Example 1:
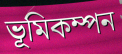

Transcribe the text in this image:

ভূমিকম্পন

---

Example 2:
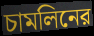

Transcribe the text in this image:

চামলিনের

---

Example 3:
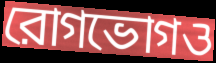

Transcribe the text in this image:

রোগভোগও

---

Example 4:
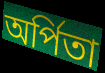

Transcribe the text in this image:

অর্পিতা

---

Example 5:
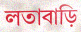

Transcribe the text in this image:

লতাবাড়ি